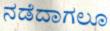
ನಡೆದಾಗಲೂ